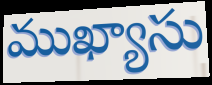
ముఖ్యాసు